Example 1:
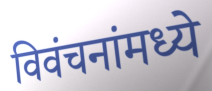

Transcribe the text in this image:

विवंचनांमध्ये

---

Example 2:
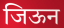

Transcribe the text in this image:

जिऊन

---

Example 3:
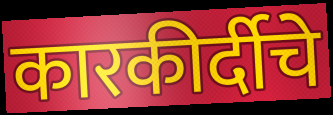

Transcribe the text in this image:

कारकीर्दीचे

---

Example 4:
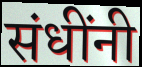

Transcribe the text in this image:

संधींनी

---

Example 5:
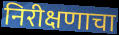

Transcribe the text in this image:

निरीक्षणाचा